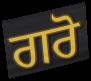
ਗਰੋ